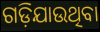
ଗଡ଼ିଯାଉଥିବା